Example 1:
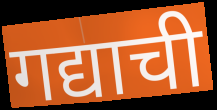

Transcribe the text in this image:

गद्याची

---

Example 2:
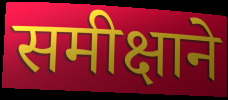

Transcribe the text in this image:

समीक्षाने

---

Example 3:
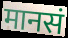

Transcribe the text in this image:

मानसं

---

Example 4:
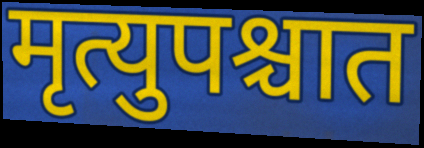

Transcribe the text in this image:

मृत्युपश्चात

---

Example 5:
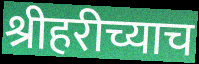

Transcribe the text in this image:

श्रीहरीच्याच